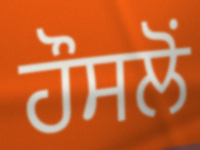
ਹੌਸਲੋਂ